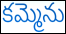
కమ్మెను